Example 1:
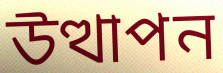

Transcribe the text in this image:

উত্থাপন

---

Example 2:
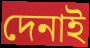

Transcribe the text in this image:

দেনাই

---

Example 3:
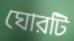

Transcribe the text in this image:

ঘোরটি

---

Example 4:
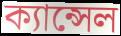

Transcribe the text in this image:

ক্যান্সেল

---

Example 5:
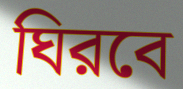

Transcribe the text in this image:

ঘিরবে